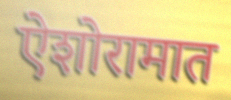
ऐशोरामात